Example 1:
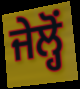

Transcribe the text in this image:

ਜੇਲ੍ਹੋਂ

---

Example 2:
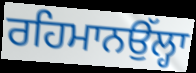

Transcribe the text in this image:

ਰਹਿਮਾਨਉੱਲ੍ਹਾ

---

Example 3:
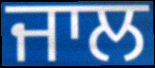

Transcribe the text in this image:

ਜਾਲ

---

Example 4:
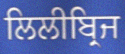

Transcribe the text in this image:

ਲਿਲੀਬ੍ਰਿਜ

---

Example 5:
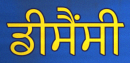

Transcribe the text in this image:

ਡੀਸੈਂਸੀ